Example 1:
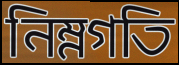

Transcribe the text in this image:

নিম্নগতি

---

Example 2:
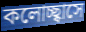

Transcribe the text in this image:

কলোচ্ছ্বাসে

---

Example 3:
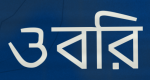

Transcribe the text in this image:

ওবরি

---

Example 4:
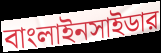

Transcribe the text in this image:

বাংলাইনসাইডার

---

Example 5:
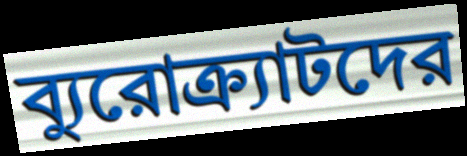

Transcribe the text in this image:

ব্যুরোক্র্যাটদের